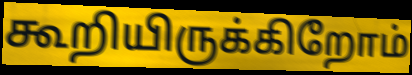
கூறியிருக்கிறோம்